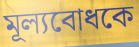
মূল্যবোধকে